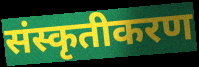
संस्कृतीकरण